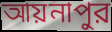
আয়নাপুর